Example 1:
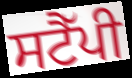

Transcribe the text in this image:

ਸਟੈੱਪੀ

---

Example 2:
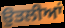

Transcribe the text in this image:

ਉਤਲੀਆਂ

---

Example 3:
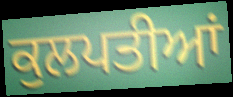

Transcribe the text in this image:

ਕੁਲਪਤੀਆਂ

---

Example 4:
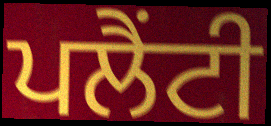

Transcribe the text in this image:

ਪਲੈਂਟੀ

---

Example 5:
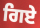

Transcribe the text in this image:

ਗਿਏ